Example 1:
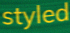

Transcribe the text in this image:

styled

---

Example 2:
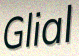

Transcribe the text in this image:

Glial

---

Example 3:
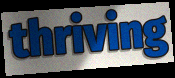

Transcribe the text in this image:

thriving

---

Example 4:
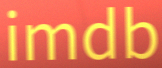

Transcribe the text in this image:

imdb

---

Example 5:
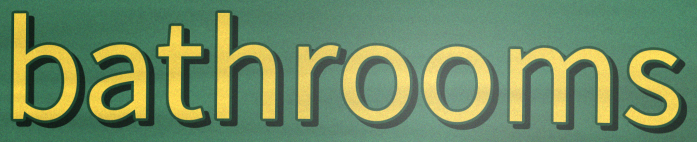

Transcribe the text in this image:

bathrooms